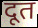
दूत